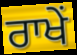
ਰਾਖੇਂ